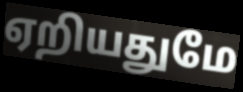
ஏறியதுமே